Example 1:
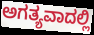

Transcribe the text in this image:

ಅಗತ್ಯವಾದಲ್ಲಿ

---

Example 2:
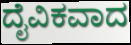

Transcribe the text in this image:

ದೈವಿಕವಾದ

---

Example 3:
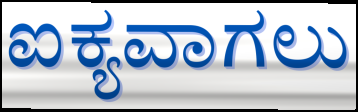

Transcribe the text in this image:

ಐಕ್ಯವಾಗಲು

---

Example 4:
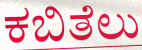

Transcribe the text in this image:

ಕಬಿತೆಲು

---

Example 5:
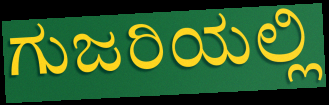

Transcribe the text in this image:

ಗುಜರಿಯಲ್ಲಿ